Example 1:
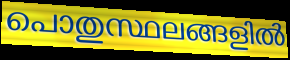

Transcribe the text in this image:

പൊതുസ്ഥലങ്ങളിൽ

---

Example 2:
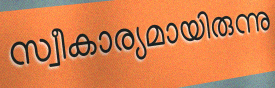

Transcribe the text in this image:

സ്വീകാര്യമായിരുന്നു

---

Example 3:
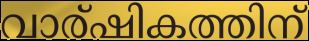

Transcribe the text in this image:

വാര്ഷികത്തിന്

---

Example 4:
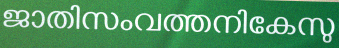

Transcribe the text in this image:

ജാതിസംവത്തനികേസു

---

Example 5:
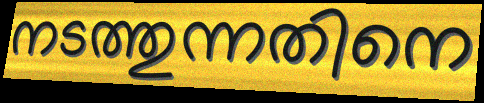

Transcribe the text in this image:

നടത്തുന്നതിനെ